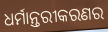
ଧର୍ମାନ୍ତରୀକରଣର